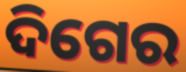
ଦିଗେର